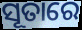
ସୂତାରେ